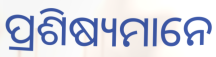
ପ୍ରଶିଷ୍ୟମାନେ